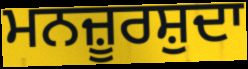
ਮਨਜ਼ੂਰਸ਼ੁਦਾ